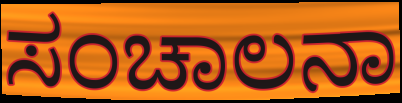
ಸಂಚಾಲನಾ